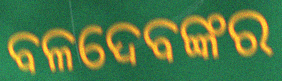
ବଳଦେବଙ୍କର